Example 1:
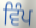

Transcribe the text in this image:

ਵਿੰਪ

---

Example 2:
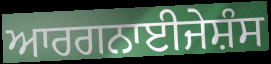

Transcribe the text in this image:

ਆਰਗਨਾਈਜੇਸ਼ੰਸ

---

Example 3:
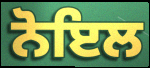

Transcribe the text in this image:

ਨੋਇਲ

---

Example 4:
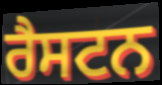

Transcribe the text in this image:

ਰੈਸਟਨ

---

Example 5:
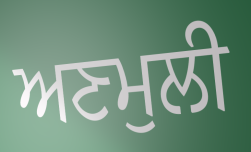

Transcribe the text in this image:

ਅਣਮੁਲੀ